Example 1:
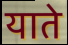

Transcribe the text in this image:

याते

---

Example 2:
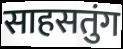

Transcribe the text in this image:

साहसतुंग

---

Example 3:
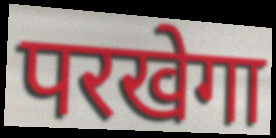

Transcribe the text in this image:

परखेगा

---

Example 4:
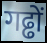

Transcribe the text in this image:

गढ्ढों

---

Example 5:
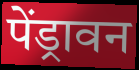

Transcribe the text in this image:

पेंड्रावन